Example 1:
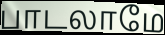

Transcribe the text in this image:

பாடலாமே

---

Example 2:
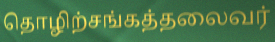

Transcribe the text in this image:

தொழிற்சங்கத்தலைவர்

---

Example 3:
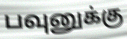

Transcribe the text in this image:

பவுனுக்கு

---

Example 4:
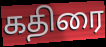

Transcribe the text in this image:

கதிரை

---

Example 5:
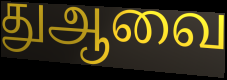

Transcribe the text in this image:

துஆவை